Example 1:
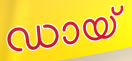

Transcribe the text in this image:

ഡായ്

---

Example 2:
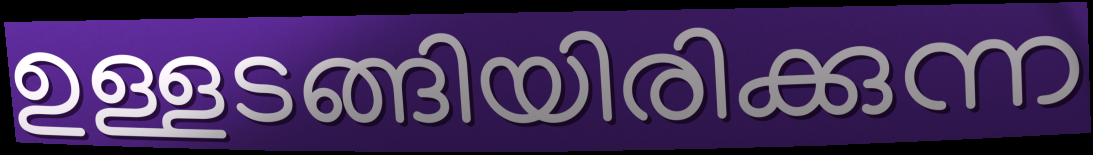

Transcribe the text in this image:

ഉള്ളടങ്ങിയിരിക്കുന്ന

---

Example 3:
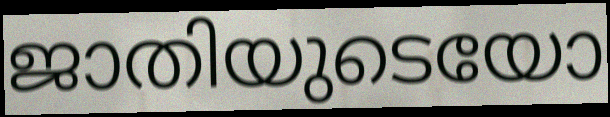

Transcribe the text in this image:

ജാതിയുടെയോ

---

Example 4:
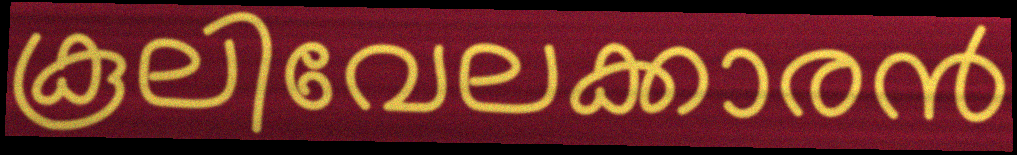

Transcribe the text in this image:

കൂലിവേലക്കാരൻ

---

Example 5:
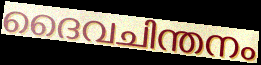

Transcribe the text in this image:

ദൈവചിന്തനം